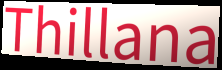
Thillana